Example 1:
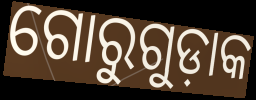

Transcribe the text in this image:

ଗୋରୁଗୁଡ଼ାକ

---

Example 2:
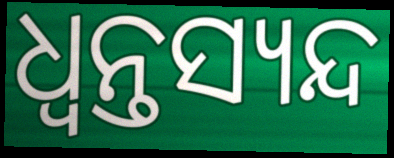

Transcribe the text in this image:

ଧ୍ଵନ୍ତସ୍ୟନ୍ଦ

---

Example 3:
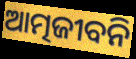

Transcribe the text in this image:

ଆତ୍ମଜୀବନି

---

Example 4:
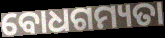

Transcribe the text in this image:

ବୋଧଗମ୍ୟତା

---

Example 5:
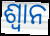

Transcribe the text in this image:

ଶ୍ଵାନ